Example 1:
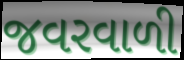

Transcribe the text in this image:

જવરવાળી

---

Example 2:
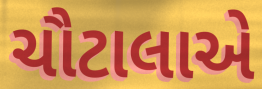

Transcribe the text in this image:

ચૌટાલાએ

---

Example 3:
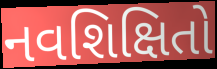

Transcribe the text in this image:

નવશિક્ષિતો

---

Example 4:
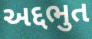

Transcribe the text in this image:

અદ્દભુત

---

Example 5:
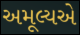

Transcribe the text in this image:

અમૂલ્યએ